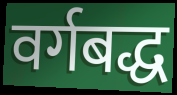
वर्गबद्ध